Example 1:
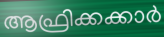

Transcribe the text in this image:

ആഫ്രിക്കക്കാർ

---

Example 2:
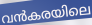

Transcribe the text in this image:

വൻകരയിലെ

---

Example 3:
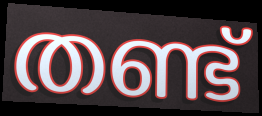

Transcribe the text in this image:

തണ്ട്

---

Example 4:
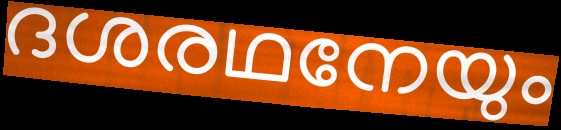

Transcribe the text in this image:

ദശരഥനേയും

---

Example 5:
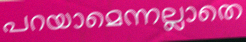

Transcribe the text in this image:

പറയാമെന്നല്ലാതെ